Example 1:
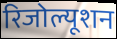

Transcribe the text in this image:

रिजोल्‍यूशन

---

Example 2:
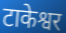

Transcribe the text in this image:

टाकेश्वर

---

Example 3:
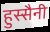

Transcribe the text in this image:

हुस्सैनी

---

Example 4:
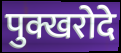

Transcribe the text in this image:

पुक्खरोदे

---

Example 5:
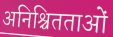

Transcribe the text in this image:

अनिश्चितताओं